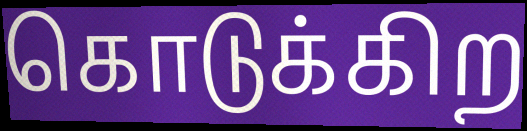
கொடுக்கிற